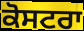
ਕੋਸਟਰਾ